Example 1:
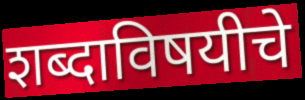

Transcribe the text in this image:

शब्दाविषयीचे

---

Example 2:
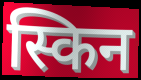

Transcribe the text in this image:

स्किन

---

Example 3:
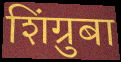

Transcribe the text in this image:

शिंग्रुबा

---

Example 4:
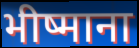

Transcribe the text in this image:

भीष्माना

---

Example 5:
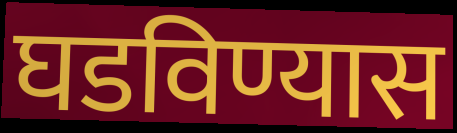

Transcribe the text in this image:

घडविण्यास